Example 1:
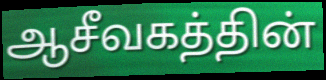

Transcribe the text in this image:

ஆசீவகத்தின்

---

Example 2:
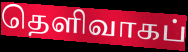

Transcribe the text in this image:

தெளிவாகப்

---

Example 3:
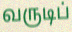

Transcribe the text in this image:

வருடிப்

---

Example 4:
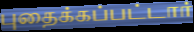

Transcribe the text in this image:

புதைக்கப்பட்டார்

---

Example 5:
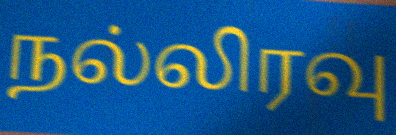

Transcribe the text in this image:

நல்லிரவு